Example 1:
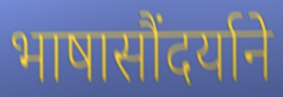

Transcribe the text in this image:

भाषासौंदर्याने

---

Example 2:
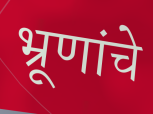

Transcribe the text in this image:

भ्रूणांचे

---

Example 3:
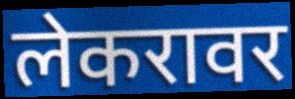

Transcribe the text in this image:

लेकरावर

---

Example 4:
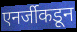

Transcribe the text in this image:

एनर्जीकडून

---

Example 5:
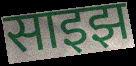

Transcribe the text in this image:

साइझ